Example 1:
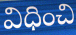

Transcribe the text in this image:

విధించి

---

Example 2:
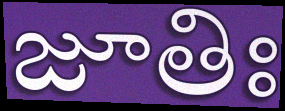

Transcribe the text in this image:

జూతిః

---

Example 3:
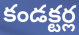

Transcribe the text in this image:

కండక్టర్ల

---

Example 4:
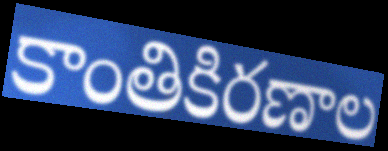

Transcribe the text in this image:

కాంతికిరణాల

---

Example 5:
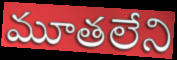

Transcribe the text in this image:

మూతలేని